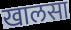
खालसा